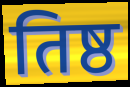
तिष्ठ